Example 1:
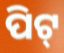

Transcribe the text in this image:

ପିଟ୍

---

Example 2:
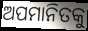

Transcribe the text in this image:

ଅପମାନିତକୁ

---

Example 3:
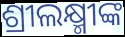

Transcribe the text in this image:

ଶ୍ରୀଲକ୍ଷ୍ମୀଙ୍କ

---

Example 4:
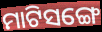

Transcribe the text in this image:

ମାଟିସଙ୍ଗେ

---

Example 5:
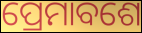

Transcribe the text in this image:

ପ୍ରେମାବଶେ